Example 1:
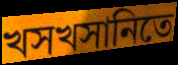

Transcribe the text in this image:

খসখসানিতে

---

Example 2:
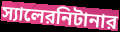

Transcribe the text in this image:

স্যালেরনিটানার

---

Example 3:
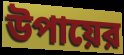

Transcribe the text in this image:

উপায়ের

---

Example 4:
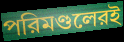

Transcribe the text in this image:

পরিমণ্ডলেরই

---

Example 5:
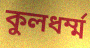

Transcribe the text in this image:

কুলধর্ম্ম